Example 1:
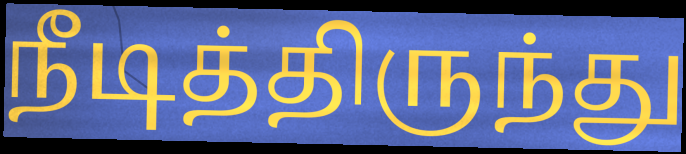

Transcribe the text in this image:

நீடித்திருந்து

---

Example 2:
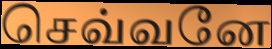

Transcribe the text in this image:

செவ்வனே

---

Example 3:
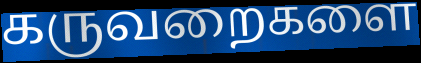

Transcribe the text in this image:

கருவறைகளை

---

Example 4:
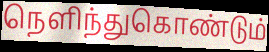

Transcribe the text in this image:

நெளிந்துகொண்டும்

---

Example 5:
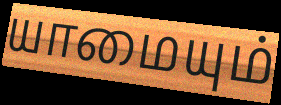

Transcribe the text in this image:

யாமையும்